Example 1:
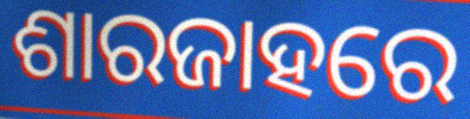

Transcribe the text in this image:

ଶାରଜାହରେ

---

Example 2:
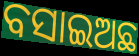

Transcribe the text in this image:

ବସାଇଅଛ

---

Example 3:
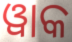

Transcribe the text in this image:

ୱାକ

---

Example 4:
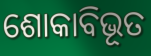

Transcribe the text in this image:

ଶୋକାବିଭୂତ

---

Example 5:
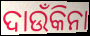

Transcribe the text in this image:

ଦାଉଁକିନା